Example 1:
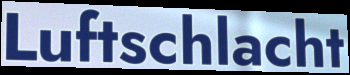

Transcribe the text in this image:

Luftschlacht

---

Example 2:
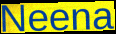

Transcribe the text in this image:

Neena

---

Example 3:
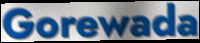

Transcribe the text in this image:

Gorewada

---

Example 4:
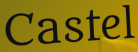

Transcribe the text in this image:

Castel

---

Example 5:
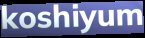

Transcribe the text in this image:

koshiyum